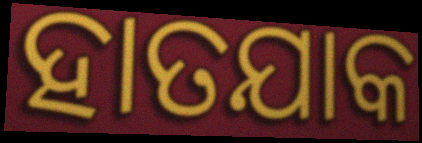
ହାତଯାକ